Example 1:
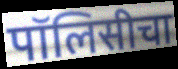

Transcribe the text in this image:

पॉलिसीचा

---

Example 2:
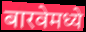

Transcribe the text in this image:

बारवेमध्ये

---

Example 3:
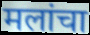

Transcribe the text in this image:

मलांचा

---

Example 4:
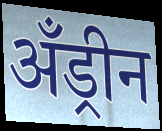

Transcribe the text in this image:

अँड्रीन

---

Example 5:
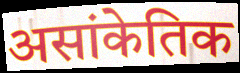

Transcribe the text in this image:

असांकेतिक